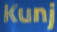
Kunj